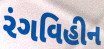
રંગવિહીન